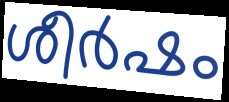
ശീർഷം